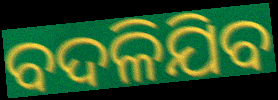
ବଦଳିଯିବ